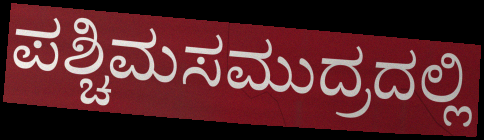
ಪಶ್ಚಿಮಸಮುದ್ರದಲ್ಲಿ